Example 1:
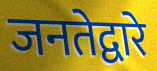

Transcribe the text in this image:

जनतेद्वारे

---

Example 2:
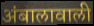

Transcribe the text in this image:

अंबालावाली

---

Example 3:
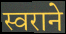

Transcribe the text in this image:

स्वराने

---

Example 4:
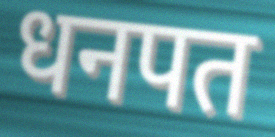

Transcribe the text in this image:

धनपत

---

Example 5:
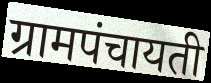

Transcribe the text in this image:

ग्रामपंचायती